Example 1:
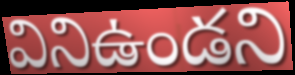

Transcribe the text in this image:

వినిఉండని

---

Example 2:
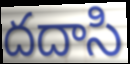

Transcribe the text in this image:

దదాసి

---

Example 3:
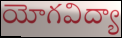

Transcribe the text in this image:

యోగవిద్యా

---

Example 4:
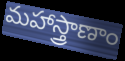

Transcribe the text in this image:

మహాస్త్రాణాం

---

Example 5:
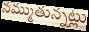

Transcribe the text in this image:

నమ్ముతున్నట్లు